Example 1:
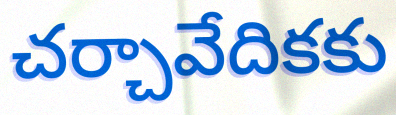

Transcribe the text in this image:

చర్చావేదికకు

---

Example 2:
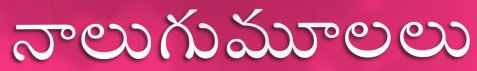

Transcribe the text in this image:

నాలుగుమూలలు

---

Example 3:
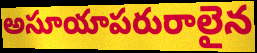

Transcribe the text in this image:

అసూయాపరురాలైన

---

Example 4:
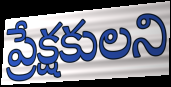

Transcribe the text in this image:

ప్రేక్షకులని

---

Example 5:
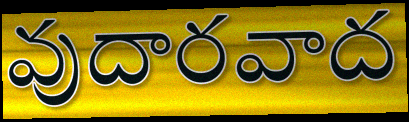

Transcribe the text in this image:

వుదారవాద